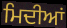
ਮਿਦੀਆਂ